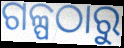
ଗଳ୍ପଠାରୁ